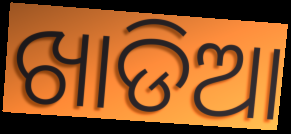
ଖାଡିଆ